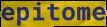
epitome